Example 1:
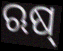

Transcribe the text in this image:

ଋଷ୍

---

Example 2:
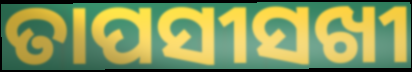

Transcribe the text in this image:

ତାପସୀସଖୀ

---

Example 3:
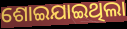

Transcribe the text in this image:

ଶୋଇଯାଇଥିଲା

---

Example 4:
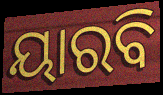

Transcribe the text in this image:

ୟାରବି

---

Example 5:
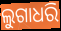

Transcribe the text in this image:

ଲୁଗାଧରି